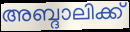
അബ്ദാലിക്ക്